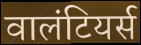
वालंटियर्स